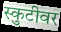
स्कुटीवर